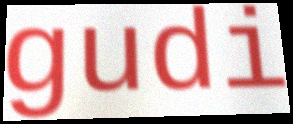
gudi